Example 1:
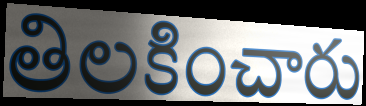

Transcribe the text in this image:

తిలకించారు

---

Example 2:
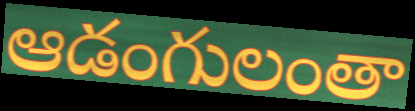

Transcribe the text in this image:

ఆడంగులంతా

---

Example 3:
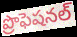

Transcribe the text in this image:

ప్రొఫెషనల్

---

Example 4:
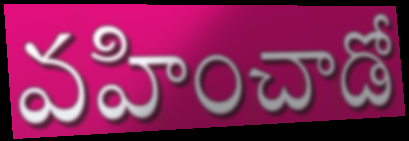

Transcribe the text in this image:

వహించాడో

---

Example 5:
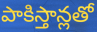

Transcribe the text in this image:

పాకిస్తాన్లతో